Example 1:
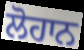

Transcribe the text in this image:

ਲੋਹਾਨ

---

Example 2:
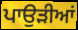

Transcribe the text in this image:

ਪਾਉੜੀਆਂ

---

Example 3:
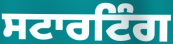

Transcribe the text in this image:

ਸਟਾਰਟਿੰਗ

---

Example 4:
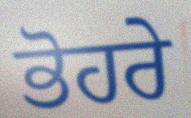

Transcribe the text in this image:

ਭੋਹਰੇ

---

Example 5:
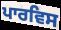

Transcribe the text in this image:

ਪਾਰਵਿਸ